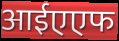
आईएएफ